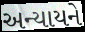
અન્યાયને